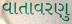
વાતાવરણુ